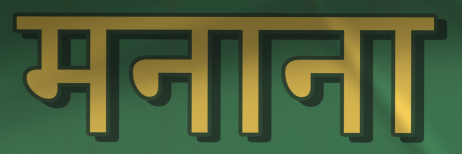
मनाना